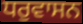
ਧਰੁਵਾਸਨ